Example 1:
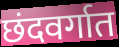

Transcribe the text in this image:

छंदवर्गात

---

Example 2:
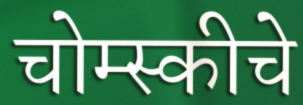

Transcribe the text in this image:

चोम्स्कीचे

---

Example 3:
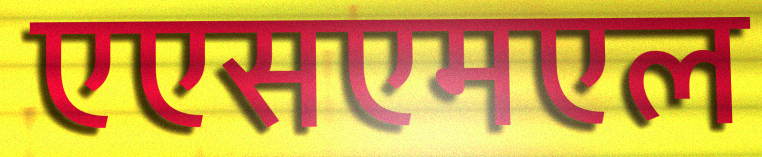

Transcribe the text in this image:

एएसएमएल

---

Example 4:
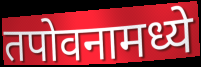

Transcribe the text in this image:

तपोवनामध्ये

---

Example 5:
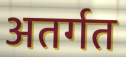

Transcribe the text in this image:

अतर्गत